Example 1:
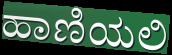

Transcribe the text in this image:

ಹಾಣಿಯಲಿ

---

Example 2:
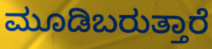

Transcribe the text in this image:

ಮೂಡಿಬರುತ್ತಾರೆ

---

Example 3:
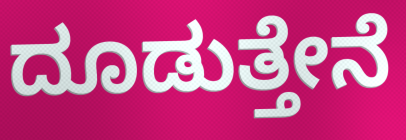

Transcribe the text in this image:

ದೂಡುತ್ತೇನೆ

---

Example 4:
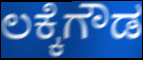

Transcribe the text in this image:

ಲಕ್ಕೆಗೌಡ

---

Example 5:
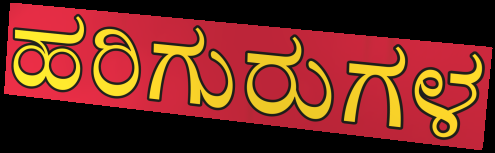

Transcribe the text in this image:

ಹರಿಗುರುಗಳ